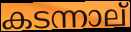
കടന്നാല്